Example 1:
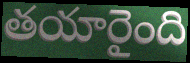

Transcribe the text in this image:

తయారైంది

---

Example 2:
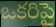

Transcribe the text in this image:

ఒకరిపై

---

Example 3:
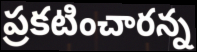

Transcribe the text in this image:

ప్రకటించారన్న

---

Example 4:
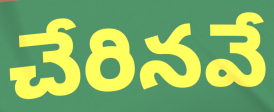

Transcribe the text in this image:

చేరినవే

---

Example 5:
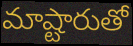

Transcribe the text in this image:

మాష్టారుతో